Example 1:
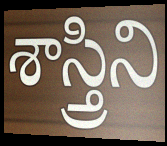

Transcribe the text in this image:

శాస్త్రిని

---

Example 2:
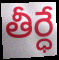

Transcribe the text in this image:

తీర్ధే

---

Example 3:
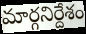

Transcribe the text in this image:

మార్గనిర్దేశం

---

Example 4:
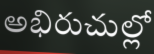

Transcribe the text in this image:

అభిరుచుల్లో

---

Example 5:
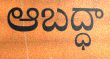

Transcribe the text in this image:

ఆబద్ధా